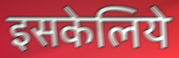
इसकेलिये